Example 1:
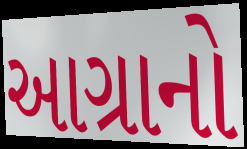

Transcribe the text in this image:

આગ્રાનો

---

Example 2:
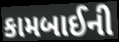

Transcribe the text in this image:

કામબાઈની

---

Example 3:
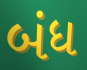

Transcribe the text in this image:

બંધ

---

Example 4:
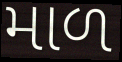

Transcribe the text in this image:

માળ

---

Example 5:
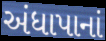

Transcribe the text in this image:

અંધાપાનાં